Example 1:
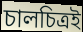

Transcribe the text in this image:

চালচিত্রই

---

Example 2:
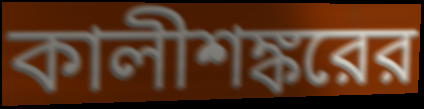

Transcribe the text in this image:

কালীশঙ্করের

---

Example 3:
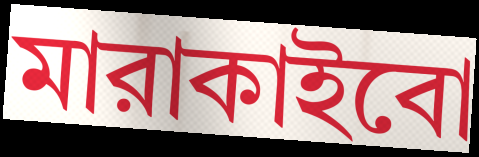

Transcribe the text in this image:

মারাকাইবো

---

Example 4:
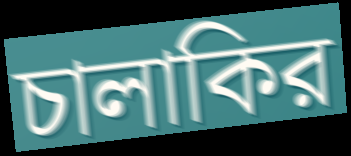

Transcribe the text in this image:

চালাকির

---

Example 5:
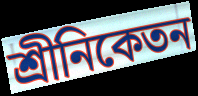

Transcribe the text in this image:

শ্রীনিকেতন